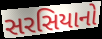
સરસિયાનો